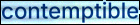
contemptible